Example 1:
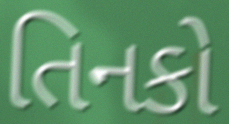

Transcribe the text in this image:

તિનકો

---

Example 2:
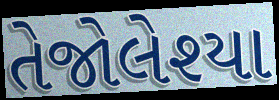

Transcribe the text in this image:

તેજોલેશ્યા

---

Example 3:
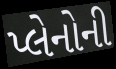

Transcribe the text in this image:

પ્લેનોની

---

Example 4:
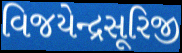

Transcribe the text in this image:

વિજયેન્દ્રસૂરિજી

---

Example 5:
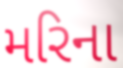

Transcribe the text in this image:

મરિના